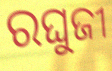
ରଘୁଜୀ